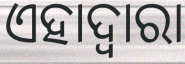
ଏହାଦ୍ୱାରା